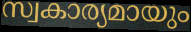
സ്വകാര്യമായും